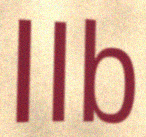
IIb